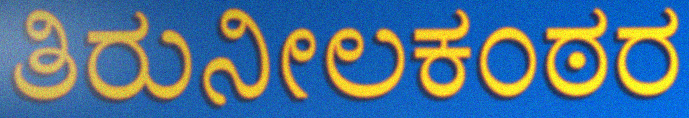
ತಿರುನೀಲಕಂಠರ